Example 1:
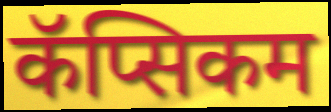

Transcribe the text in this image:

कॅप्सिकम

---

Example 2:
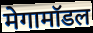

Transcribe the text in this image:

मेगामॉडल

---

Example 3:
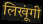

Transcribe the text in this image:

लिखूंगी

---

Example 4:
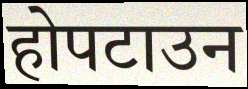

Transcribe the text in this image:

होपटाउन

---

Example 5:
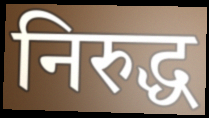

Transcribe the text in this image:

निरुद्ध